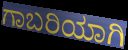
ಗಾಬರಿಯಾಗಿ